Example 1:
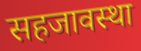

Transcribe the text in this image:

सहजावस्था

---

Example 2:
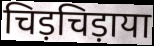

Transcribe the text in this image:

चिड़चिड़ाया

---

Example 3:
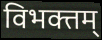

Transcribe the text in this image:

विभक्तम्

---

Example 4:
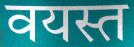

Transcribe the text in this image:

वयस्त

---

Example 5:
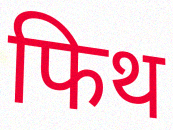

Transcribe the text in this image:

फिथ